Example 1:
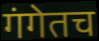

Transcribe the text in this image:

गंगेतच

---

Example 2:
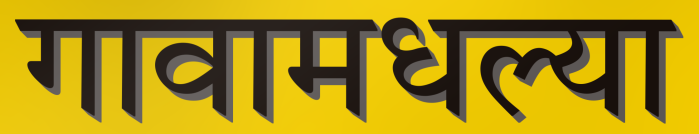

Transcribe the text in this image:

गावामधल्या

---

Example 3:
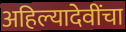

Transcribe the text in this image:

अहिल्यादेवींचा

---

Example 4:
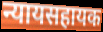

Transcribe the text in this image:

न्यायसहायक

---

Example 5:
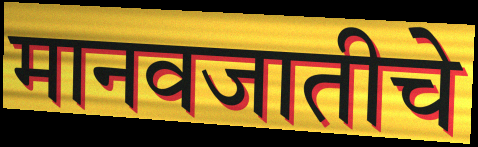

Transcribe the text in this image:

मानवजातीचे